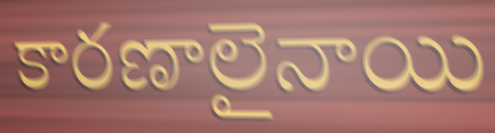
కారణాలైనాయి